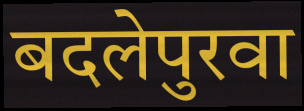
बदलेपुरवा